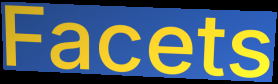
Facets